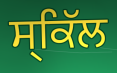
ਸ੍ਕਿੱਲ